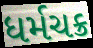
ધર્મચક્ર